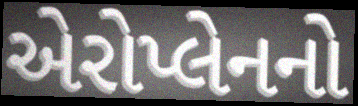
એરોપ્લેનનો